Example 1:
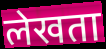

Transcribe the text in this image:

लेखता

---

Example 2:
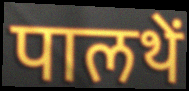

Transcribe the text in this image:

पालथें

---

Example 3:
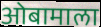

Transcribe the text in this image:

ओबामाला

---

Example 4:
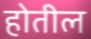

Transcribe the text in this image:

होतील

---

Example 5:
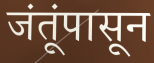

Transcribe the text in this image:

जंतूंपासून